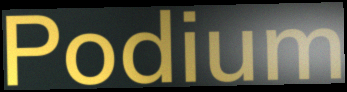
Podium